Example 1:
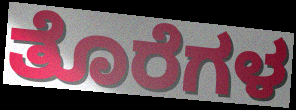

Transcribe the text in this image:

ತೊರೆಗಳ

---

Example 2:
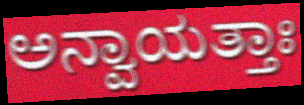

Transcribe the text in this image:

ಅನ್ವಾಯತ್ತಾಃ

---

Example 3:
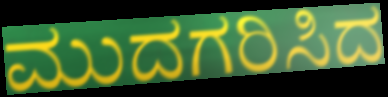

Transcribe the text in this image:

ಮುದಗರಿಸಿದ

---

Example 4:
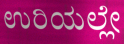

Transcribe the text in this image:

ಉರಿಯಲ್ಲೇ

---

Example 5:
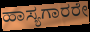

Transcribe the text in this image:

ಹಾಸ್ಯಗಾರರೇ